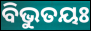
ବିଭୁତୟଃ